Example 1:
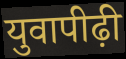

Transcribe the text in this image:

युवापीढ़ी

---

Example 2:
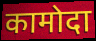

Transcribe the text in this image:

कामोदा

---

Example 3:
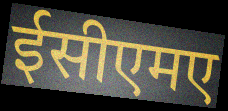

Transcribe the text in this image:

ईसीएमए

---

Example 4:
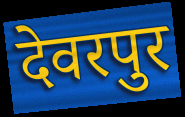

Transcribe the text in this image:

देवरपुर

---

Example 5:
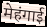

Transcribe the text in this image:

मेहंगाई